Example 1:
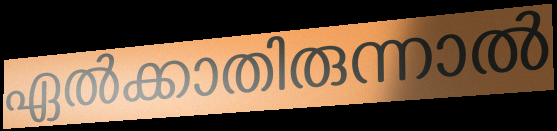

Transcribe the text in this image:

ഏൽക്കാതിരുന്നാൽ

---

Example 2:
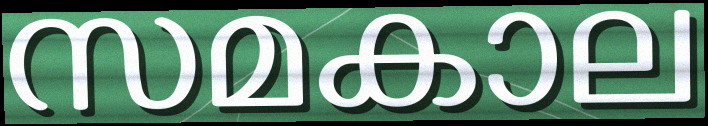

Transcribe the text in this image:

സമകാല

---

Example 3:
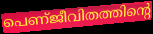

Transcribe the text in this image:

പെണ്ജീവിതത്തിന്റെ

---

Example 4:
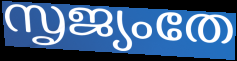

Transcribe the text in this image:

സൃജ്യംതേ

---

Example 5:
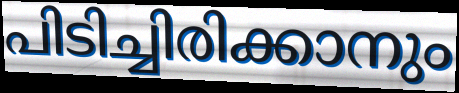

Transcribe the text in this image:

പിടിച്ചിരിക്കാനും